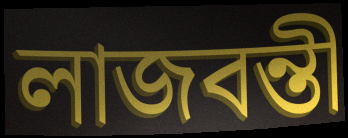
লাজবন্তী